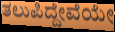
ತಲುಪಿದ್ದೇವೆಯೇ